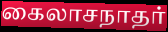
கைலாசநாதர்